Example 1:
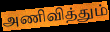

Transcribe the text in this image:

அணிவித்தும்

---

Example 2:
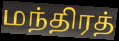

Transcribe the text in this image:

மந்திரத்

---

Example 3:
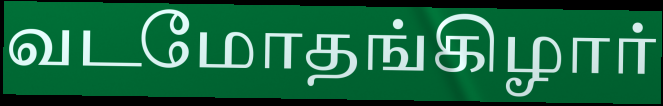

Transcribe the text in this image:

வடமோதங்கிழார்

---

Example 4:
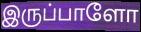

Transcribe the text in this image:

இருப்பாளோ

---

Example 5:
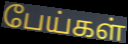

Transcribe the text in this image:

பேய்கள்